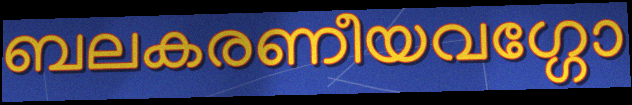
ബലകരണീയവഗ്ഗോ